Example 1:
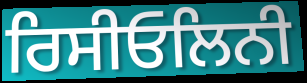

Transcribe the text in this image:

ਰਿਸੀਓਲਿਨੀ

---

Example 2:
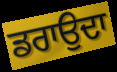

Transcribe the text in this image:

ਡਰਾਉਦਾ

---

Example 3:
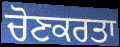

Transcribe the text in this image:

ਚੋਣਕਰਤਾ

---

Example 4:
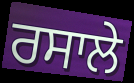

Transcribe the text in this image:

ਰਸਾਲੇ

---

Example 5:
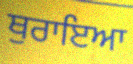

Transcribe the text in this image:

ਥੁਰਾਇਆ